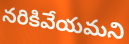
నరికివేయమని